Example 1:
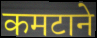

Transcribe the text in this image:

कमटाने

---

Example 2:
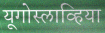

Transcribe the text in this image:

यूगोस्लाव्हिया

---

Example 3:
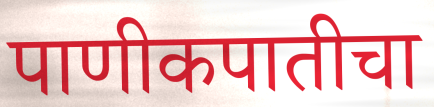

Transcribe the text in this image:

पाणीकपातीचा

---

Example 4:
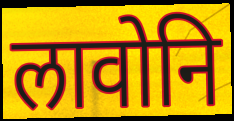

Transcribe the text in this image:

लावोनि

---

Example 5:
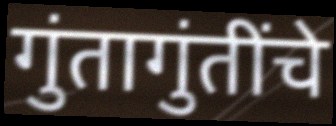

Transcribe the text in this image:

गुंतागुंतींचे